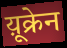
य़ूक्रेन